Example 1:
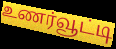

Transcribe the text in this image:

உணர்வூட்டி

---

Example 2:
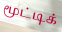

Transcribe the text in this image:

மூட்டிக்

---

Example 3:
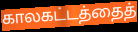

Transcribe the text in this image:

காலகட்டத்தைத்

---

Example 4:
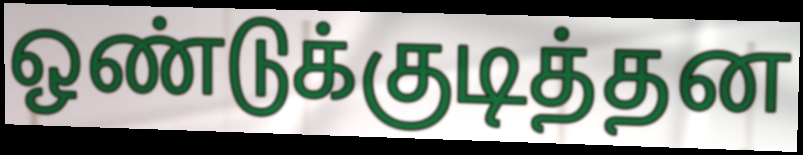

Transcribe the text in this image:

ஒண்டுக்குடித்தன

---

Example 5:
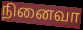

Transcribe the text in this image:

நினைவா